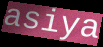
asiya